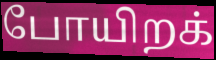
போயிறக்